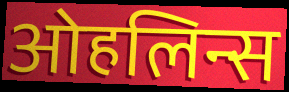
ओहलिन्स